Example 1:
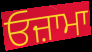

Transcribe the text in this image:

ਓਜ਼ਾਮਾ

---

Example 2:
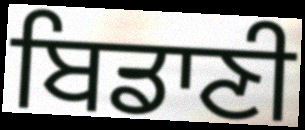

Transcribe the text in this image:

ਬਿਡਾਣੀ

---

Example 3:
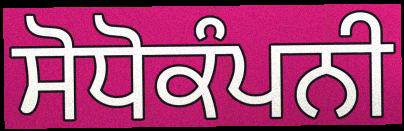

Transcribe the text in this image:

ਸੋਧੋਕੰਪਨੀ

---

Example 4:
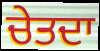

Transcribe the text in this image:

ਚੇਤਦਾ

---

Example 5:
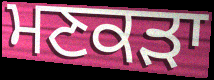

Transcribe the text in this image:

ਮਣਕੜਾ